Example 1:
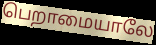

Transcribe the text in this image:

பெறாமையாலே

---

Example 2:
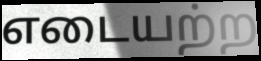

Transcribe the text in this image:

எடையற்ற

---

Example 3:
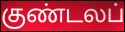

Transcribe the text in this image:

குண்டலப்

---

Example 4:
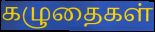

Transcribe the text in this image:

கழுதைகள்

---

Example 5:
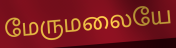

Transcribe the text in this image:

மேருமலையே